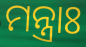
ମନ୍ତ୍ରାଃ